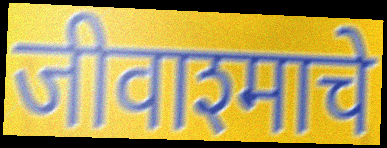
जीवाश्माचे